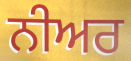
ਨੀਅਰ